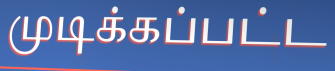
முடிக்கப்பட்ட